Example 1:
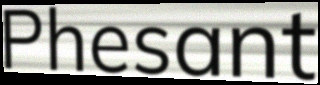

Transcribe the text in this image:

Phesant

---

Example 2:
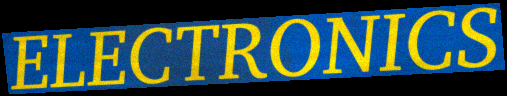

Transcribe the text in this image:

ELECTRONICS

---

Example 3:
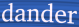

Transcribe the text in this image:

dander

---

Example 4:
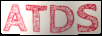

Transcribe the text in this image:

ATDS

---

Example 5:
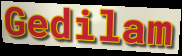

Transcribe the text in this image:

Gedilam